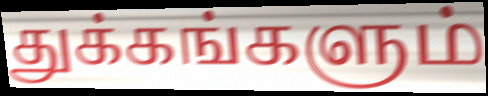
துக்கங்களும்